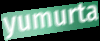
yumurta